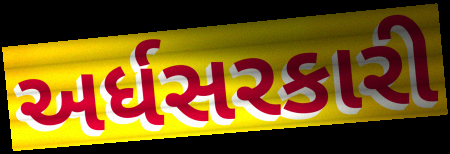
અર્ધસરકારી